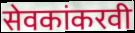
सेवकांकरवी